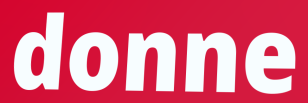
donne